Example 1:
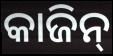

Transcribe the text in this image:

କାଜିନ୍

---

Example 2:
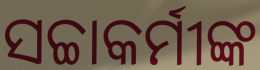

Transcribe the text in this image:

ସଚ୍ଚାକର୍ମୀଙ୍କ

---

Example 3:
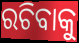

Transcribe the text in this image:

ରଚିବାକୁ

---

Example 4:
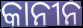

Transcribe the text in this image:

କାନୀନ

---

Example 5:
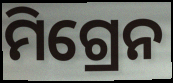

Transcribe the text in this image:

ମିଗ୍ରେନ